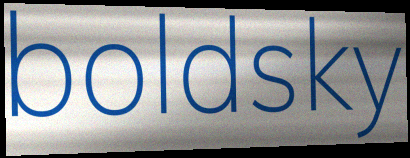
boldsky